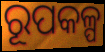
ରୂପକଳ୍ପ